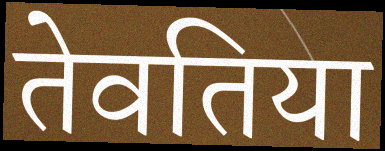
तेवतिया